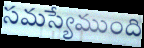
సమస్యేముంది